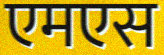
एमएस